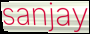
sanjay